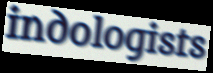
indologists